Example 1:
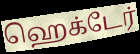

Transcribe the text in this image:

ஹெக்டேர்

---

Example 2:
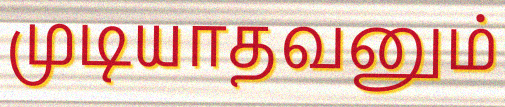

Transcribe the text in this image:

முடியாதவனும்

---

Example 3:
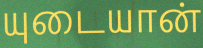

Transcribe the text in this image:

யுடையான்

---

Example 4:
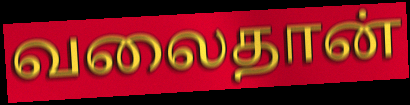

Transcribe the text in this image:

வலைதான்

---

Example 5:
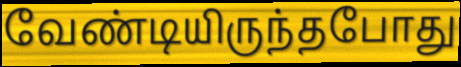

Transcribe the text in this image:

வேண்டியிருந்தபோது